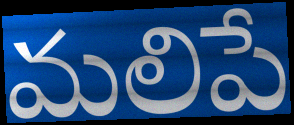
మలిపే